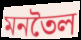
মনতৈল